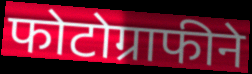
फोटोग्राफीने